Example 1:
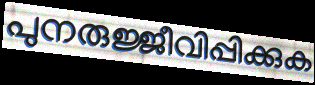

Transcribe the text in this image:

പുനരുജ്ജീവിപ്പിക്കുക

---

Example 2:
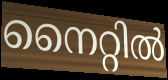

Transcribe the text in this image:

നൈറ്റിൽ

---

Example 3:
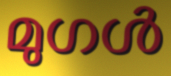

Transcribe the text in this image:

മുഗൾ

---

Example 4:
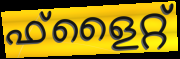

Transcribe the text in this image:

ഫ്ളൈറ്റ്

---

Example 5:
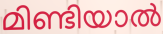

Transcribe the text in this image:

മിണ്ടിയാൽ